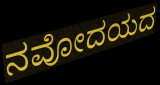
ನವೋದಯದ